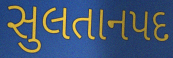
સુલતાનપદ